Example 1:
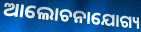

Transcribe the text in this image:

ଆଲୋଚନାଯୋଗ୍ୟ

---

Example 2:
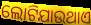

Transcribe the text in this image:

ଲୋଟିଯାଉଥାଏ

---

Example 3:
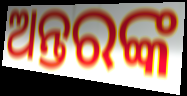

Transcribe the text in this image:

ଅନ୍ତରଙ୍କ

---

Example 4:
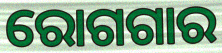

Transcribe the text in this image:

ରୋଗଗାର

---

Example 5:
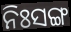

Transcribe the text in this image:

ନିଃସଙ୍ଗ